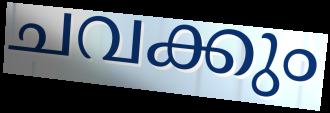
ചവക്കും